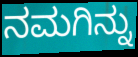
ನಮಗಿನ್ನು